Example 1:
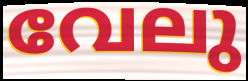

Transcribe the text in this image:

വേലു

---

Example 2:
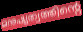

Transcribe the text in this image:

മനുഷ്യത്വത്തിന്റെ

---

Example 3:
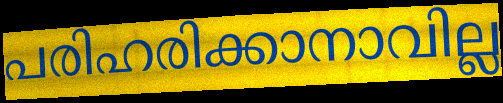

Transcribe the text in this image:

പരിഹരിക്കാനാവില്ല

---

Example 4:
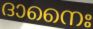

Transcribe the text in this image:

ദാനൈഃ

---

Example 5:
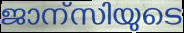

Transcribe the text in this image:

ജാന്സിയുടെ